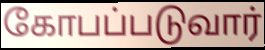
கோபப்படுவார்